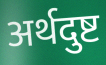
अर्थदुष्ट